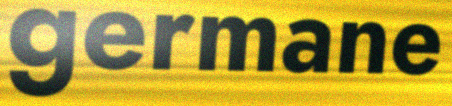
germane